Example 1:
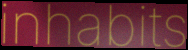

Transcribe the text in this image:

inhabits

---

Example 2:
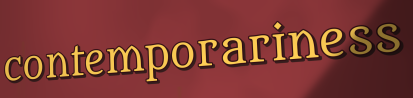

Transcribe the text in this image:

contemporariness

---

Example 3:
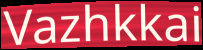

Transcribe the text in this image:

Vazhkkai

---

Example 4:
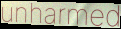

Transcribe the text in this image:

unharmed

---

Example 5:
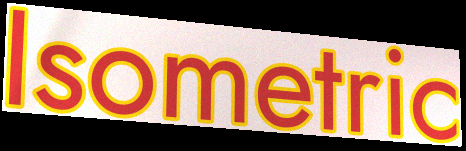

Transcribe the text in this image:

Isometric